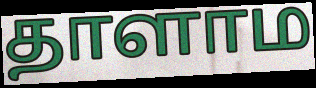
தாளாம